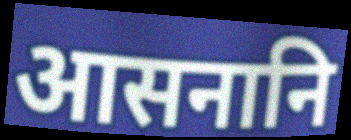
आसनानि